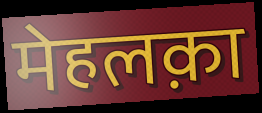
मेहलक़ा